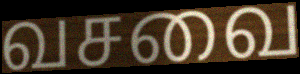
வசவை